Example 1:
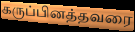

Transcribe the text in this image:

கருப்பினத்தவரை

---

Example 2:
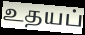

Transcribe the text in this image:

உதயப்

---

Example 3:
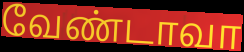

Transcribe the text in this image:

வேண்டாவா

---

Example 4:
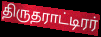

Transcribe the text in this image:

திருதராட்டிரர்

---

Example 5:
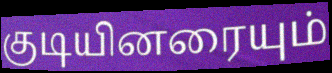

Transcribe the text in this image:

குடியினரையும்